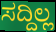
ಸದ್ದಿಲ್ಲ